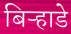
बिऱ्हाडे